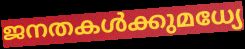
ജനതകൾക്കുമധ്യേ